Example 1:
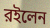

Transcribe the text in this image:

রইলেন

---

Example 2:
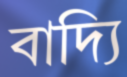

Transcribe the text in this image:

বাদ্যি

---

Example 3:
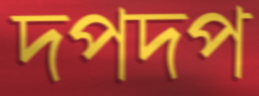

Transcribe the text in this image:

দপদপ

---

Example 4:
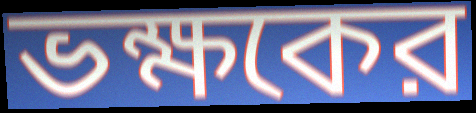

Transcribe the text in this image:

ভক্ষকের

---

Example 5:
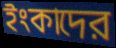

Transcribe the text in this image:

ইংকাদের